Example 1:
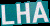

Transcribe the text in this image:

LHA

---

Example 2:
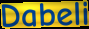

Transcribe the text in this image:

Dabeli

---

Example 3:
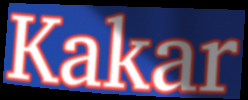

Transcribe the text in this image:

Kakar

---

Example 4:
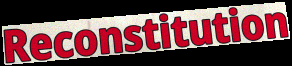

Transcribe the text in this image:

Reconstitution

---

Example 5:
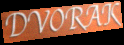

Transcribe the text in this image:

DVORAK